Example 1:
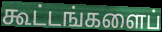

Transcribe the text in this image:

கூட்டங்களைப்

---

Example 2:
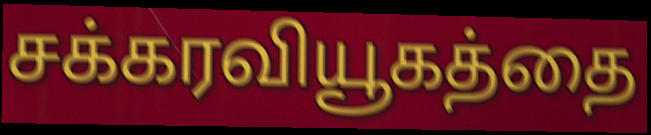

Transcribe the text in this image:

சக்கரவியூகத்தை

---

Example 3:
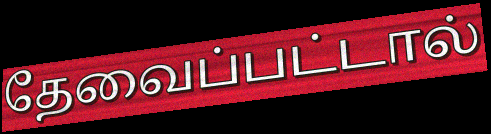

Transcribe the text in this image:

தேவைப்பட்டால்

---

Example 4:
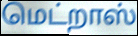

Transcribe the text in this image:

மெட்றாஸ்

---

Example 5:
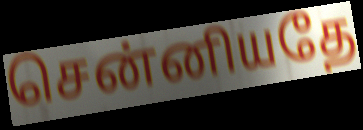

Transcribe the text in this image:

சென்னியதே